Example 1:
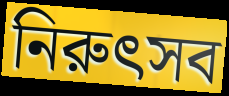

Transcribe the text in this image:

নিরুৎসব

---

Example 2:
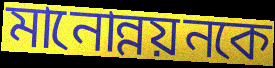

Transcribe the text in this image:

মানোন্নয়নকে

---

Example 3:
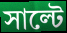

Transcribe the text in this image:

সাল্টে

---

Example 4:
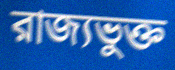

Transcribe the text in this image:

রাজ্যভুক্ত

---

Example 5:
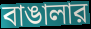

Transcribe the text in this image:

বাঙালার